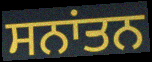
ਸਨਾਂਤਨ